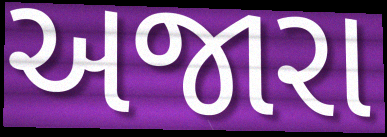
અજારા